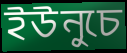
ইউনুচে